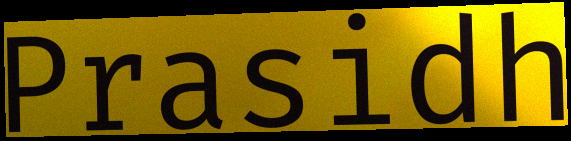
Prasidh